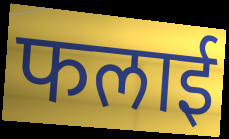
फलाई